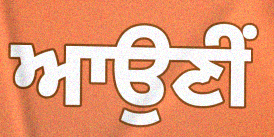
ਆਉਣੀੰ